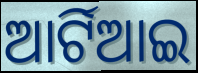
ଆର୍ଟିଆଇ